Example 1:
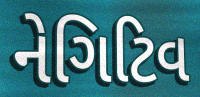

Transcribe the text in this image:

નેગિટિવ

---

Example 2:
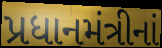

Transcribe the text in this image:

પ્રધાનમંત્રીનાં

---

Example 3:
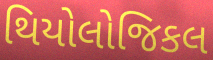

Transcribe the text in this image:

થિયોલોજિકલ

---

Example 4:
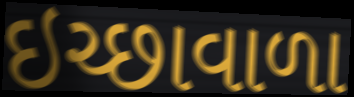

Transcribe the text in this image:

ઇચ્છાવાળા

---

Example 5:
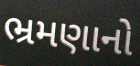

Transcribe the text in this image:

ભ્રમણાનો